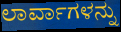
ಲಾರ್ವಾಗಳನ್ನು